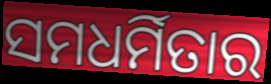
ସମଧର୍ମିତାର